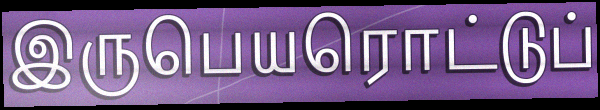
இருபெயரொட்டுப்